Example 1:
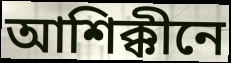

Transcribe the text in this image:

আশিক্কীনে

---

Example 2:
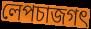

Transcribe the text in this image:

লেপচাজগৎ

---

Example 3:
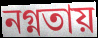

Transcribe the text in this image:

নগ্নতায়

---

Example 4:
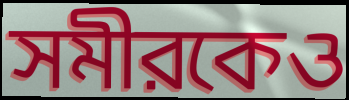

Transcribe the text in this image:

সমীরকেও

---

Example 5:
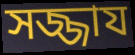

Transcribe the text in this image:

সজ্জায